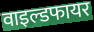
वाइल्डफायर